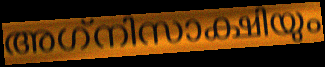
അഗ്‌നിസാക്ഷിയും